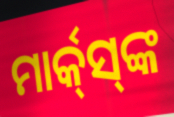
ମାର୍କ୍‌ସ୍‌ଙ୍କ